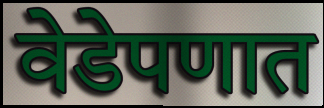
वेडेपणात